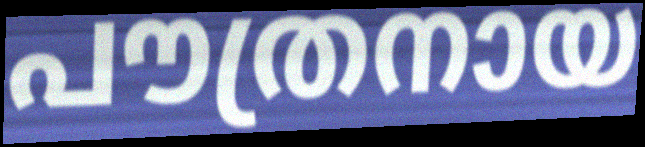
പൗത്രനായ